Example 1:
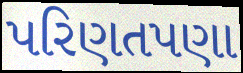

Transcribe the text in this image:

પરિણતપણા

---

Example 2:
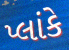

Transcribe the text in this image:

પ્લાંકે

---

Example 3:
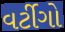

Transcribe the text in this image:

વર્ટીગો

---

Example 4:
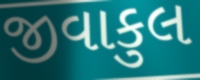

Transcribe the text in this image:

જીવાકુલ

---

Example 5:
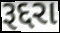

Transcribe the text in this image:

રૂદ્દરા